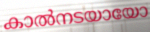
കാൽനടയായോ